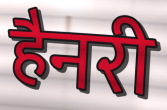
हैनरी